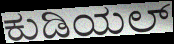
ಕುಡಿಯಲ್